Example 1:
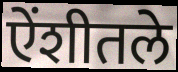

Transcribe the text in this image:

ऐंशीतले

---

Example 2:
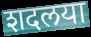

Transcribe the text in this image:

शदलया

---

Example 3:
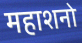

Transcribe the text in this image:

महाशनो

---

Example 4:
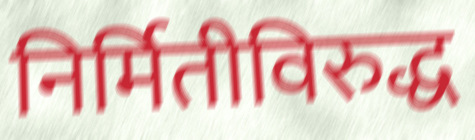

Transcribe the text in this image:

निर्मितीविरुद्ध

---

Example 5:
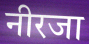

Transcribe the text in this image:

नीरजा